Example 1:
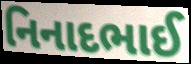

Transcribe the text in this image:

નિનાદભાઈ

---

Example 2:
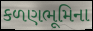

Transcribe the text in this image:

કળણભૂમિના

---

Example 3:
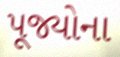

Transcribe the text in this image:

પૂજ્યોના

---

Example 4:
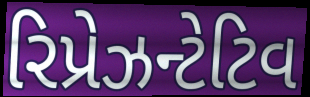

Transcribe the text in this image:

રિપ્રેઝન્ટેટિવ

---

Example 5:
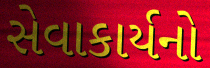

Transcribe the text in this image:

સેવાકાર્યનો